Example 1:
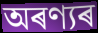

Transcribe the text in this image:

অৰণ্যৰ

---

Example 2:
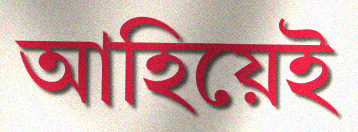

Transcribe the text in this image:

আহিয়েই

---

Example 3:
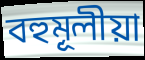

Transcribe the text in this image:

বহুমূলীয়া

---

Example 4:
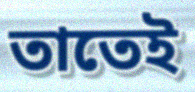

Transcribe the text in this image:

তাতেই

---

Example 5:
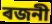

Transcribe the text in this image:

ৰজনী